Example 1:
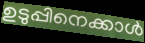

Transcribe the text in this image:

ഉടുപ്പിനെക്കാൾ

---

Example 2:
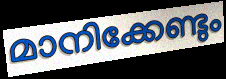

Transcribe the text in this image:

മാനിക്കേണ്ടും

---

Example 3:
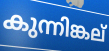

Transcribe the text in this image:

കുന്നിങ്കല്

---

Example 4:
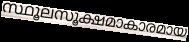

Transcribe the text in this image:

സ്ഥൂലസൂക്ഷമാകാരമായ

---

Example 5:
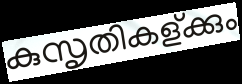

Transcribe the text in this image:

കുസൃതികള്ക്കും